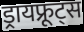
ड्रायफ्रूट्स